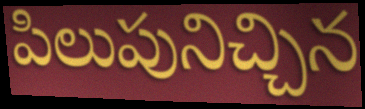
పిలుపునిచ్చిన